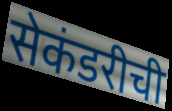
सेकंडरीची